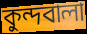
কুন্দবালা